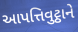
આપત્તિવુટ્ઠાને